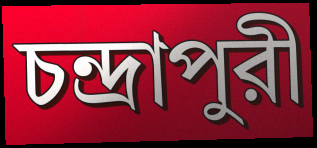
চন্দ্রাপুরী